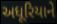
અધૂરિયાને